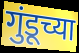
गुंडूच्या